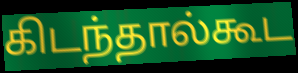
கிடந்தால்கூட